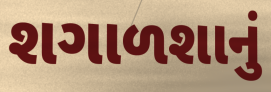
શગાળશાનું